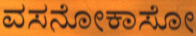
ವಸನೋಕಾಸೋ